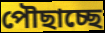
পৌছাচ্ছে